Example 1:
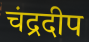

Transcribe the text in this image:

चंद्रदीप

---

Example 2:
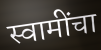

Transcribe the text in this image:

स्वामींचा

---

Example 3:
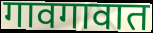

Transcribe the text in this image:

गावगावात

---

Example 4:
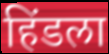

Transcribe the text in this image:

हिंडला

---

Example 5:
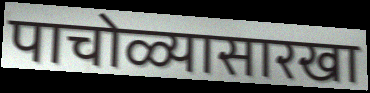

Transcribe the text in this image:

पाचोळ्यासारखा